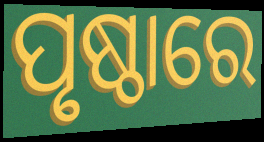
ପୃଷ୍ଠାରେ